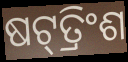
ଷଟ୍‌ତ୍ରିଂଶ